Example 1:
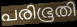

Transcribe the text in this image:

പരിഭൂതി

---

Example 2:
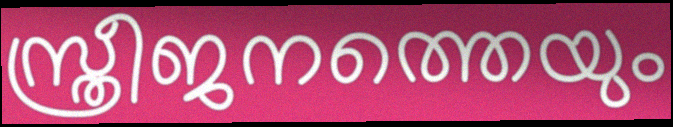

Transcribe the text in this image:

സ്ത്രീജനത്തെയും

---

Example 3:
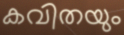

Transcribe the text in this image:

കവിതയും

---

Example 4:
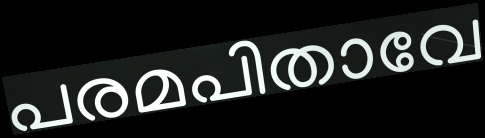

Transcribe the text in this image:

പരമപിതാവേ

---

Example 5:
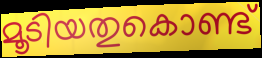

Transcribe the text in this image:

മൂടിയതുകൊണ്ട്